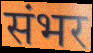
संभर